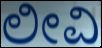
ಲೀವಿ